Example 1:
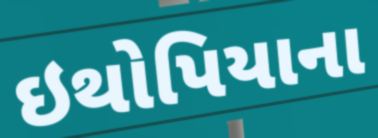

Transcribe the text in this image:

ઇથોપિયાના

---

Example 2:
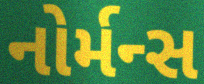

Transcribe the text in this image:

નોર્મન્સ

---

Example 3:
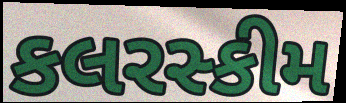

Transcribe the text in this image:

કલરસ્કીમ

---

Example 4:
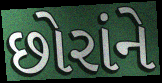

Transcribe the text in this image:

છોરાંને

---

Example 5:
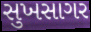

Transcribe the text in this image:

સુખસાગર